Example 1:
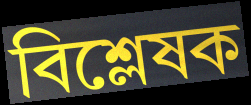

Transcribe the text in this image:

বিশ্লেষক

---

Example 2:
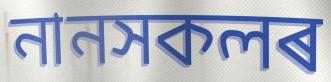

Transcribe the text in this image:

নানসকলৰ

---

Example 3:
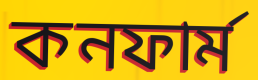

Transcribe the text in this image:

কনফাৰ্ম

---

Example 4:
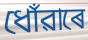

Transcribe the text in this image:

ধোঁৱাৰে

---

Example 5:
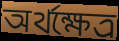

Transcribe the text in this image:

অৰ্থক্ষেত্ৰ